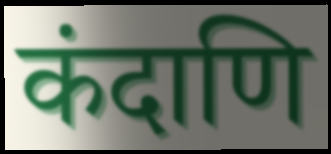
कंदाणि